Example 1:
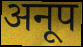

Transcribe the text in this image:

अनूप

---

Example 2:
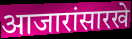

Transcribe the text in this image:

आजारांसारखे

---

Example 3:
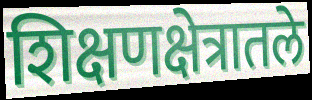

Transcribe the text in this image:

शिक्षणक्षेत्रातले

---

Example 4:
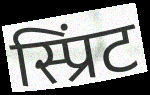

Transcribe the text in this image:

स्प्रिंट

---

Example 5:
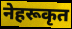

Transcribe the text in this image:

नेहरूकृत